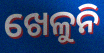
ଖେଳୁନି